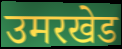
उमरखेड